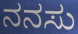
ನನಸು